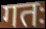
गतः